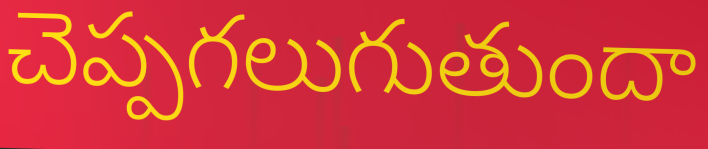
చెప్పగలుగుతుందా